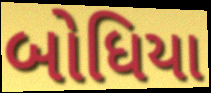
બોધિયા